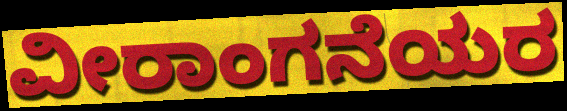
ವೀರಾಂಗನೆಯರ